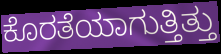
ಕೊರತೆಯಾಗುತ್ತಿತ್ತು